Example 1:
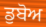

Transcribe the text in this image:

ਡੁਬੋਅ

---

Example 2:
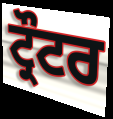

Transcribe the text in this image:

ਟ੍ਰੌਟਰ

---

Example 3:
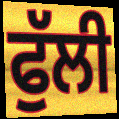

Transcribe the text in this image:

ਫੁੱਲੀ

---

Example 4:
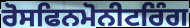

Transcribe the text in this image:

ਰੋਸਫਿਨਮੋਨੀਟਰਿੰਗ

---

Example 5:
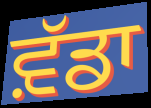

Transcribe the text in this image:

ਵ਼ੱਡਾ